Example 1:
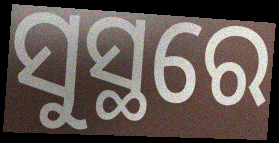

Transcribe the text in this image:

ସୁସ୍ଥରେ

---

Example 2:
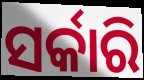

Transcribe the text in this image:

ସର୍କାରି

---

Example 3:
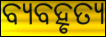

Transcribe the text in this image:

ବ୍ୟବହୃତ୍ୟ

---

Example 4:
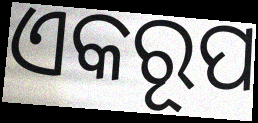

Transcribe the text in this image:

ଏକରୂପ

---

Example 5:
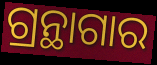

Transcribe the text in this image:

ଗ୍ରନ୍ଥାଗାର